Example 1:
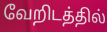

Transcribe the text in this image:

வேறிடத்தில்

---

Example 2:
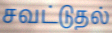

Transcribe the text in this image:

சவட்டுதல்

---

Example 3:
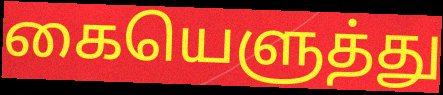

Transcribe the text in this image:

கையெளுத்து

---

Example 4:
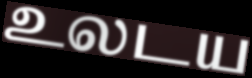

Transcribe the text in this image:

உலடய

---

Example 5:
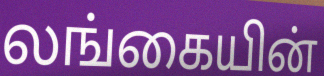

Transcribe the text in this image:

லங்கையின்